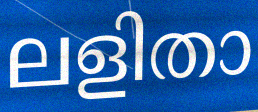
ലളിതാ